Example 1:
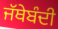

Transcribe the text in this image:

ਜੱਥੇਬੰਦੀ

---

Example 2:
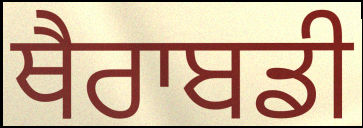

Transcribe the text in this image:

ਥੈਰਾਬਡੀ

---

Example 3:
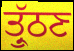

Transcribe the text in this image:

ਤ੍ਰੁੱਠਣ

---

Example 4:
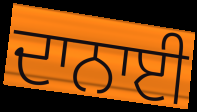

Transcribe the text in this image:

ਦਾਨਾਈ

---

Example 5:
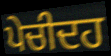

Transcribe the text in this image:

ਪੇਚੀਦਹ